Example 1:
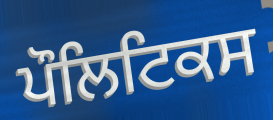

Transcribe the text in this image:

ਪੌਲਿਟਿਕਸ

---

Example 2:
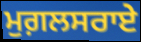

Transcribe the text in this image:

ਮੁਗ਼ਲਸਰਾਏ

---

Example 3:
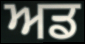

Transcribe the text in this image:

ਅਡ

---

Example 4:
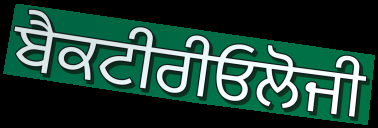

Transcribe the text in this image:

ਬੈਕਟੀਰੀਓਲੋਜੀ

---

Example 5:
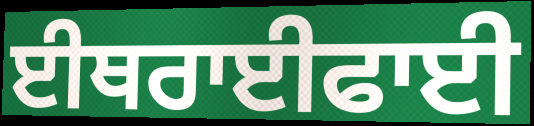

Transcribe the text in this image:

ਈਥਰਾਈਫਾਈ